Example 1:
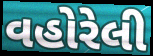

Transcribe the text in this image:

વહોરેલી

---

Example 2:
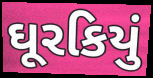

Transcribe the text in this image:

ઘૂરકિયું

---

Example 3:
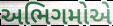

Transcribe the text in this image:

અભિગમોએ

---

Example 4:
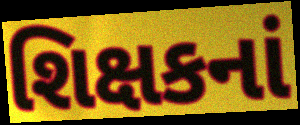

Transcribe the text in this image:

શિક્ષકનાં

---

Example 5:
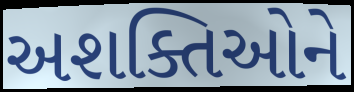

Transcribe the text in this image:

અશક્તિઓને